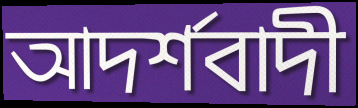
আদর্শবাদী